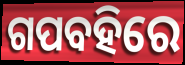
ଗପବହିରେ